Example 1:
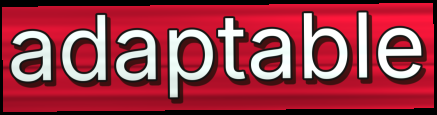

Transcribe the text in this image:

adaptable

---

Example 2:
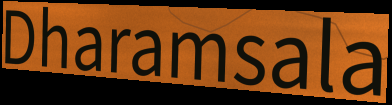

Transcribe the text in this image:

Dharamsala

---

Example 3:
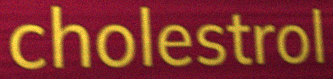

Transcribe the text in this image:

cholestrol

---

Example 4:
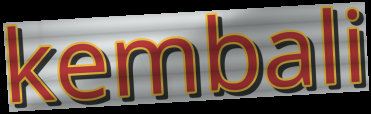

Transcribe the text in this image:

kembali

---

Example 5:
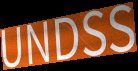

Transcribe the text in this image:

UNDSS